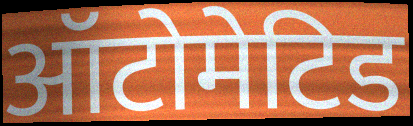
ऑटोमेटिड